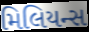
મિલિયન્સ